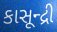
કાસૂન્દ્રી